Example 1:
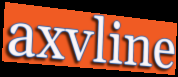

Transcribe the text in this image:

axvline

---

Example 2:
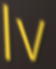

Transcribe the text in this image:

Iv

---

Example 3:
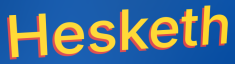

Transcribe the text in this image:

Hesketh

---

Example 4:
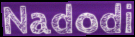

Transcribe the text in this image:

Nadodi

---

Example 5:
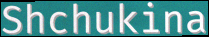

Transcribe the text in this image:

Shchukina